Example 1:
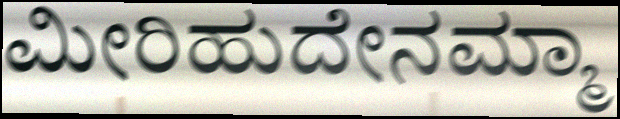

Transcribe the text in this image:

ಮೀರಿಹುದೇನಮ್ಮಾ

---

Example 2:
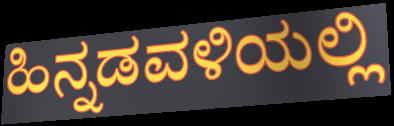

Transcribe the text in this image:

ಹಿನ್ನಡವಳಿಯಲ್ಲಿ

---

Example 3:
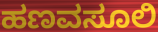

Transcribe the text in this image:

ಹಣವಸೂಲಿ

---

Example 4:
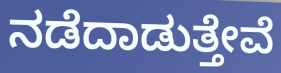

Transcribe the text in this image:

ನಡೆದಾಡುತ್ತೇವೆ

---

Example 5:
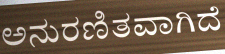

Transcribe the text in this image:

ಅನುರಣಿತವಾಗಿದೆ